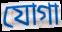
যোগা